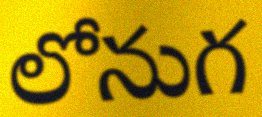
లోనుగ